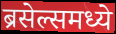
ब्रसेल्समध्ये